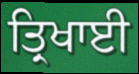
ਤ੍ਰਿਖਾਈ